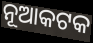
ନୂଆକଟକ